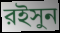
রইসুন